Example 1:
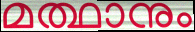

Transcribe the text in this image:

മത്ഥാനും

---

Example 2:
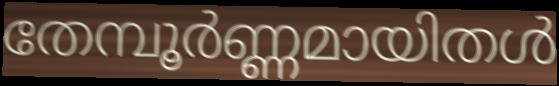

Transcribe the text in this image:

തേമ്പൂർണ്ണമായിതൾ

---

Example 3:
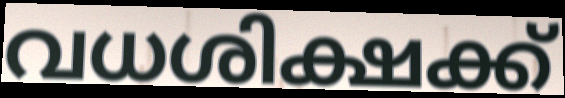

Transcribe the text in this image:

വധശിക്ഷക്ക്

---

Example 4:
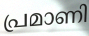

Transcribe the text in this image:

പ്രമാണി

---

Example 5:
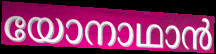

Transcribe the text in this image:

യോനാഥാൻ